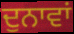
ਦੁਨਾਵਾਂ